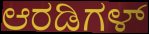
ಆರಡಿಗಳ್